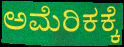
ಅಮೆರಿಕಕ್ಕೆ